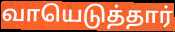
வாயெடுத்தார்